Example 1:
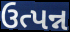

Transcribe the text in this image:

ઉત્પન્ન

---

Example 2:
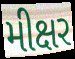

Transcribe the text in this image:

મીક્ષર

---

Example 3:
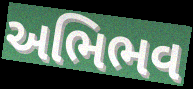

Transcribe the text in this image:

અભિભવ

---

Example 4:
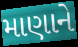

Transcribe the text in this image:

માણાને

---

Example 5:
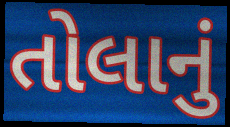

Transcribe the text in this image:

તોલાનું